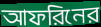
আফরিনের